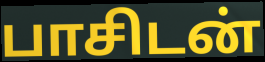
பாசிடன்